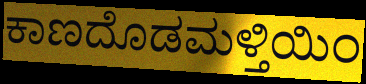
ಕಾಣದೊಡಮಳ್ತಿಯಿಂ